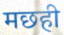
मछही